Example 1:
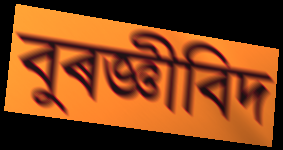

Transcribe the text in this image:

বুৰজ্ঞীবিদ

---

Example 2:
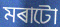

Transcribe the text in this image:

মৰাটো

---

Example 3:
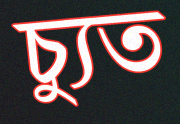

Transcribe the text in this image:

চ্যুত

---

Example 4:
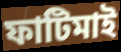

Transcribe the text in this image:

ফাটিমাই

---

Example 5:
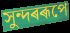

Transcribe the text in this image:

সুন্দৰৰূপে